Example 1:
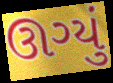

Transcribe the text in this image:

ઊગ્યું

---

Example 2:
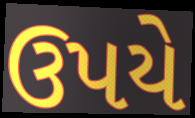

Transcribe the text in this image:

ઉપયે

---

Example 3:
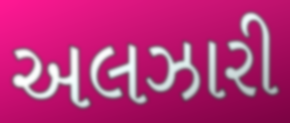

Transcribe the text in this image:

અલઝારી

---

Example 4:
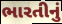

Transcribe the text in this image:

ભારતીનું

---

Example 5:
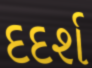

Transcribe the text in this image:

દદર્શ